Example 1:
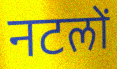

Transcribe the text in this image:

नटलों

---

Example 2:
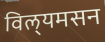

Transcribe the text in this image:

विल्यमसन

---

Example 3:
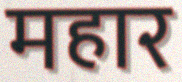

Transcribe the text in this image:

महार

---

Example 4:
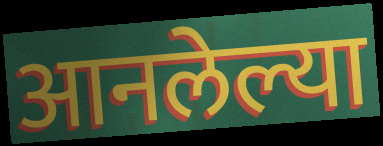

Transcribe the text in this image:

आनलेल्या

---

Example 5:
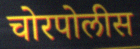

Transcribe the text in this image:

चोरपोलीस